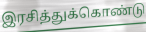
இரசித்துக்கொண்டு